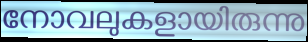
നോവലുകളായിരുന്നു